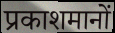
प्रकाशमानों